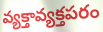
వ్యక్తావ్యక్తపరం